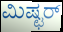
ಮಿಷ್ಟರ್